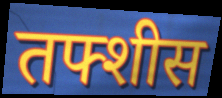
तफ्शीस